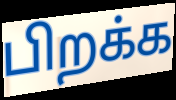
பிறக்க